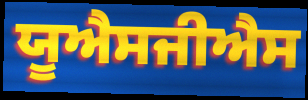
ਯੂਐਸਜੀਐਸ